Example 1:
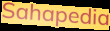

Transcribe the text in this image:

Sahapedia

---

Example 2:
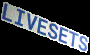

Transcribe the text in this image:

LIVESETS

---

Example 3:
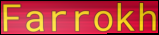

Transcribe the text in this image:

Farrokh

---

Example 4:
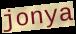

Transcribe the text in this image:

jonya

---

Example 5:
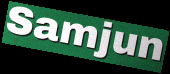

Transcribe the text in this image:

Samjun